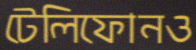
টেলিফোনও